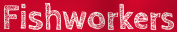
Fishworkers